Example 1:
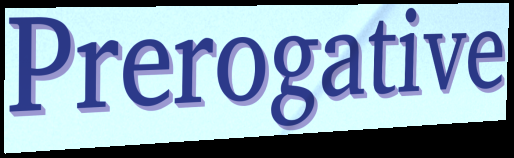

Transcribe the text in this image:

Prerogative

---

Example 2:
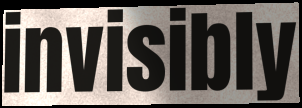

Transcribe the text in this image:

invisibly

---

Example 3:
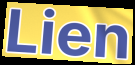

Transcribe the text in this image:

Lien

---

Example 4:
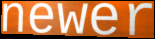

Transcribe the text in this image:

newer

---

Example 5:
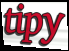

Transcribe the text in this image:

tipy